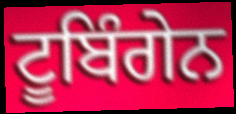
ਟੂਬਿੰਗੇਨ